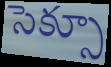
సెక్సూ